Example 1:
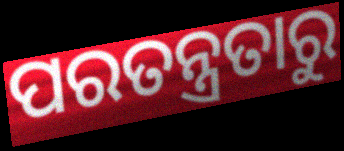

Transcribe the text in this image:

ପରତନ୍ତ୍ରତାରୁ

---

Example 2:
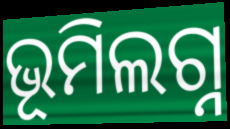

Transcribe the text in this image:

ଭୂମିଲଗ୍ନ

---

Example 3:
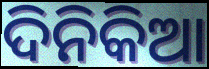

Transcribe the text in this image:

ଦିନିକିଆ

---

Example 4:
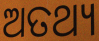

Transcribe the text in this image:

ଅତଥ୍ୟ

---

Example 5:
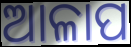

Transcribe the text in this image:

ଆଳାପ